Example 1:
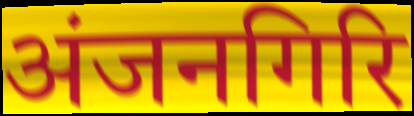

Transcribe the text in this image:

अंजनगिरि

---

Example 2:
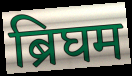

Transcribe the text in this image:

ब्रिघम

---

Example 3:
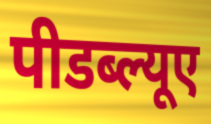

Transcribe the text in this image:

पीडब्ल्यूए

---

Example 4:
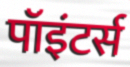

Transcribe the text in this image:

पॉइंटर्स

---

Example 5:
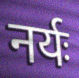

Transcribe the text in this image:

नर्यः